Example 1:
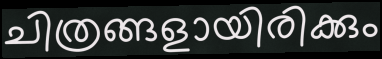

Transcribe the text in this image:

ചിത്രങ്ങളായിരിക്കും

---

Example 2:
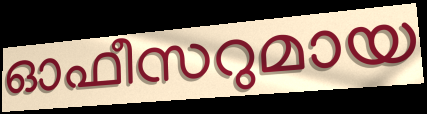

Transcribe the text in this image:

ഓഫീസറുമായ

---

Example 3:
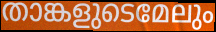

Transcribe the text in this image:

താങ്കളുടെമേലും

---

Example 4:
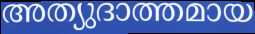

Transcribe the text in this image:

അത്യുദാത്തമായ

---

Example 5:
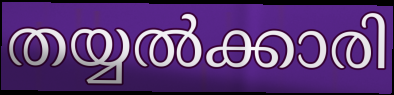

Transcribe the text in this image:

തയ്യൽക്കാരി